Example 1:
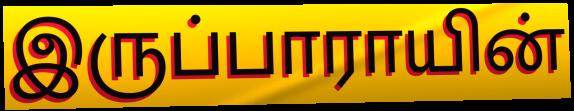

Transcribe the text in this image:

இருப்பாராயின்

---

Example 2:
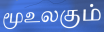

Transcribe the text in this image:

மூஉலகும்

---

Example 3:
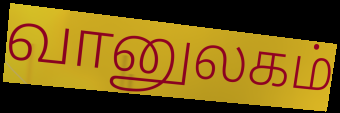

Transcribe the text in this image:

வானுலகம்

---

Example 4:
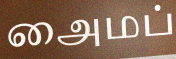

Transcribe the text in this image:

அைமப்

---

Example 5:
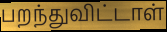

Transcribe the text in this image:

பறந்துவிட்டாள்